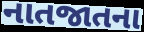
નાતજાતના